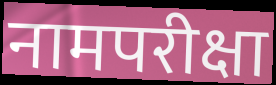
नामपरीक्षा